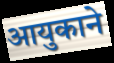
आयुकाने